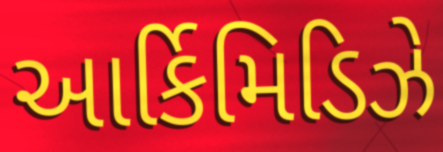
આર્કિમિડિઝે